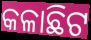
କଳାଛିଟ